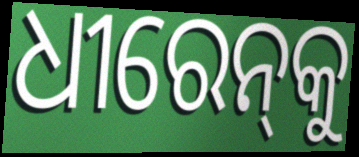
ଧୀରେନ୍‌କୁ